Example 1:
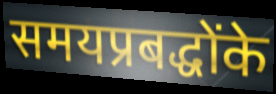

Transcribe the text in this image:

समयप्रबद्धोंके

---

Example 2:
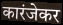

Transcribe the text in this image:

कारंजेकर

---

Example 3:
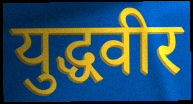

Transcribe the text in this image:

युद्धवीर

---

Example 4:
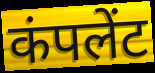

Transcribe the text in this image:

कंपलेंट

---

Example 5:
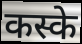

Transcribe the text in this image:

कस्के